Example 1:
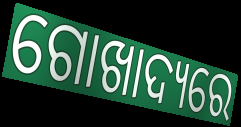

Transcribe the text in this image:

ଗୋଖାଦ୍ୟରେ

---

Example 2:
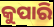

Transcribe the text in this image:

କୁପାରି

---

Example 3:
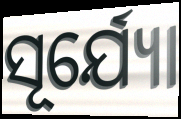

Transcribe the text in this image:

ସୂର୍ଯ୍ୟୋ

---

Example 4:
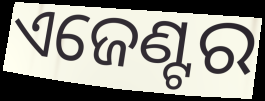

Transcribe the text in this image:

ଏଜେଣ୍ଟର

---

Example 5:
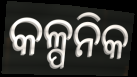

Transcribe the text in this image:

କଳ୍ପନିକ